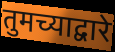
तुमच्याद्वारे